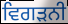
ਵਿਗੜਨੀ